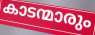
കാടന്മാരും